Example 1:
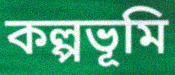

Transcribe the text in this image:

কল্পভূমি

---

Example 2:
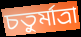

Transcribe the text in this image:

চতুর্মাত্রা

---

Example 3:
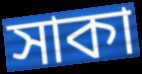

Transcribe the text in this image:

সাকা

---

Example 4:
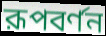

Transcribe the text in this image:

রূপবর্ণন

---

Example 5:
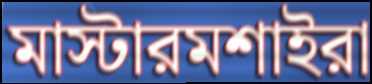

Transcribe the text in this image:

মাস্টারমশাইরা